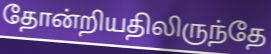
தோன்றியதிலிருந்தே